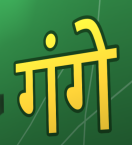
गंगे